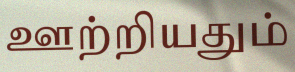
ஊற்றியதும்